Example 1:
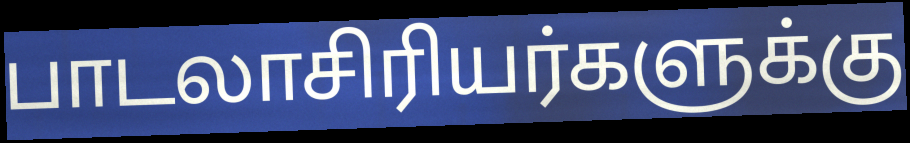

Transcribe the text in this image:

பாடலாசிரியர்களுக்கு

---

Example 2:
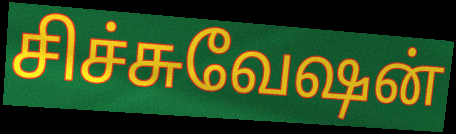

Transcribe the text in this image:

சிச்சுவேஷன்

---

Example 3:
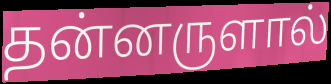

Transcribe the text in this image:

தன்னருளால்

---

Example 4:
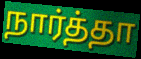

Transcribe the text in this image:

நார்த்தா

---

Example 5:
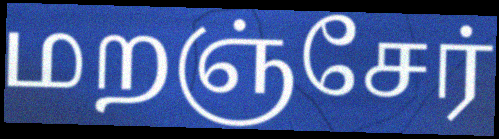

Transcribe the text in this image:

மறஞ்சேர்